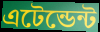
এটেন্ডেন্ট